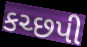
કચ્છપી